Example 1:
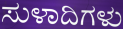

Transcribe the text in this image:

ಸುಳಾದಿಗಳು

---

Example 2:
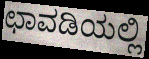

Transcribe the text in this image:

ಛಾವಡಿಯಲ್ಲಿ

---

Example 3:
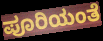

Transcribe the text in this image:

ಪೂರಿಯಂತೆ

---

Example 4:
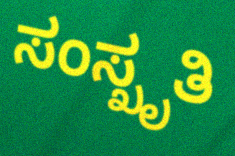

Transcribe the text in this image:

ಸಂಸ್ಖೃತಿ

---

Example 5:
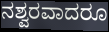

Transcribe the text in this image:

ನಶ್ವರವಾದರೂ